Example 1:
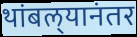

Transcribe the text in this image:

थांबल्यानंतर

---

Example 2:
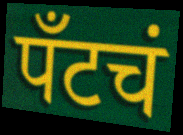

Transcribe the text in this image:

पँटचं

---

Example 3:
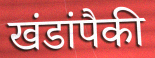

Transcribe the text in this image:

खंडांपैकी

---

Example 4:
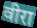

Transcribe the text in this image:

वीरा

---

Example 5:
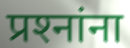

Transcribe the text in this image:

प्रश्‍नांना